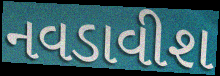
નવડાવીશ